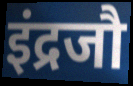
इंद्रजौ